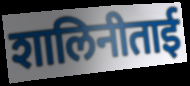
शालिनीताई